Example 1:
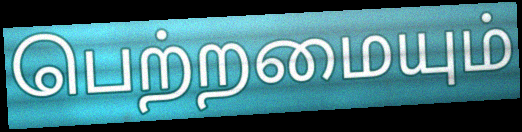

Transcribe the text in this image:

பெற்றமையும்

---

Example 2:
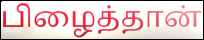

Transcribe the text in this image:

பிழைத்தான்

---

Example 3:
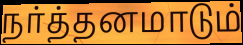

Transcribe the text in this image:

நர்த்தனமாடும்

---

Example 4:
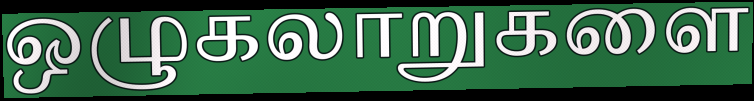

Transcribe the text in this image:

ஒழுகலாறுகளை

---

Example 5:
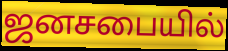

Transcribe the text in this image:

ஜனசபையில்